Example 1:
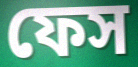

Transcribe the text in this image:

ফেস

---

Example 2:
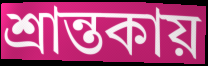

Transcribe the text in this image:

শ্রান্তকায়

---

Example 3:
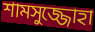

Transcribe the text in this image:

শামসুজ্জোহা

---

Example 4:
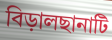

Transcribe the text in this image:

বিড়ালছানাটি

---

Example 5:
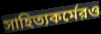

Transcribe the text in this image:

সাহিত্যকর্মেরও